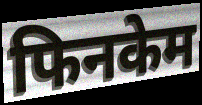
फिनकेम